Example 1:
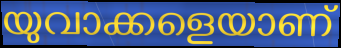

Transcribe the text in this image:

യുവാക്കളെയാണ്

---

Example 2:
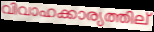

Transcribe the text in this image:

വിവാഹക്കാര്യത്തില്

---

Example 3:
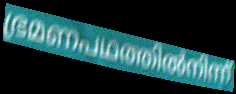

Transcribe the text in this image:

ഭ്രമണപഥത്തിൽനിന്ന്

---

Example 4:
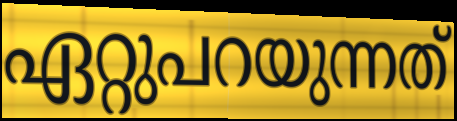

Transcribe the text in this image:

ഏറ്റുപറയുന്നത്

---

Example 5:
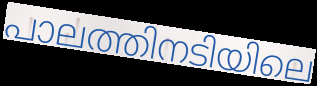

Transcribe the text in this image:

പാലത്തിനടിയിലെ